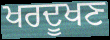
ਖਰਦੂਖਣ